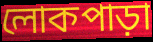
লোকপাড়া